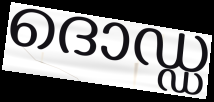
ദൊഡ്ഡ